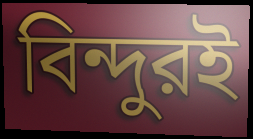
বিন্দুরই